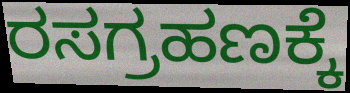
ರಸಗ್ರಹಣಕ್ಕೆ